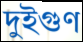
দুইগুণ